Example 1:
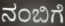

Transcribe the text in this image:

ನಂಬಿಗೆ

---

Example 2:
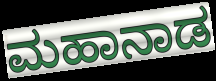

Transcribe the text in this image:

ಮಹಾನಾಡ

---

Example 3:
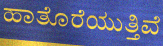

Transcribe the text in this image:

ಹಾತೊರೆಯುತ್ತಿವೆ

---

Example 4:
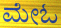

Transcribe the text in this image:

ಮೇಓ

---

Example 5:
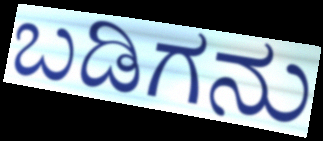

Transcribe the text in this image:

ಬಡಿಗನು